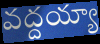
వద్దయ్యా